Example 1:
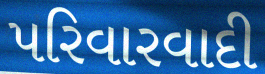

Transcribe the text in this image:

પરિવારવાદી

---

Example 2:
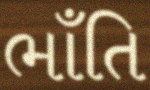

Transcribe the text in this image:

ભાઁતિ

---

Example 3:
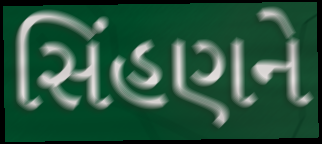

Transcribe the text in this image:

સિંહણને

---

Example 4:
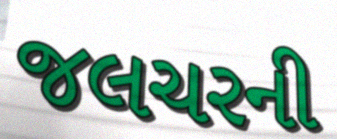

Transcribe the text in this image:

જલચરની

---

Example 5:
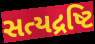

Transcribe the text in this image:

સત્યદ્રષ્ટિ